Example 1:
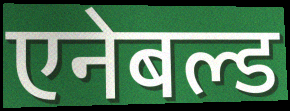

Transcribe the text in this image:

एनेबल्ड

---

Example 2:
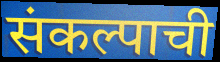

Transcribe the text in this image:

संकल्पाची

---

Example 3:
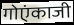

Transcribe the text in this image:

गोएंकाजी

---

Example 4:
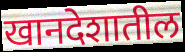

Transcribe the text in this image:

खानदेशातील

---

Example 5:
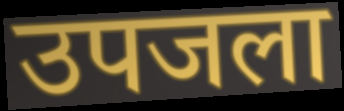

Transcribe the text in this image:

उपजला